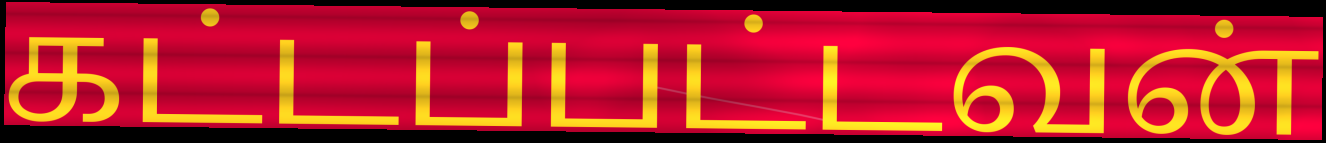
கட்டப்பட்டவன்